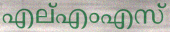
എല്എംഎസ്